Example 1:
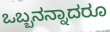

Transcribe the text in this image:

ಒಬ್ಬನನ್ನಾದರೂ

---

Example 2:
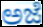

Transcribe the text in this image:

ಅಜೆ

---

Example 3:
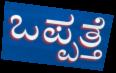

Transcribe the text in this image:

ಒಪ್ಪತ್ತೆ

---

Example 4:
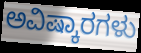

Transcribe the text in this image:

ಅವಿಷ್ಕಾರಗಳು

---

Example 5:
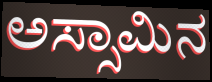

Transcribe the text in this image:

ಅಸ್ಸಾಮಿನ